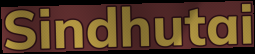
Sindhutai